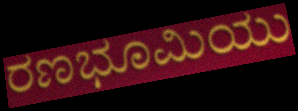
ರಣಭೂಮಿಯು